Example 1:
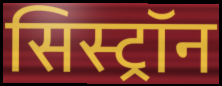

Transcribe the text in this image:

सिस्ट्रॉन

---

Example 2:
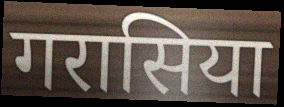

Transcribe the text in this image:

गरासिया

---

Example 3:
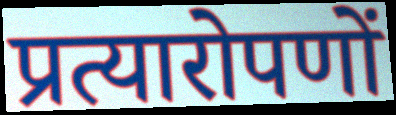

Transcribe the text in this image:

प्रत्यारोपणों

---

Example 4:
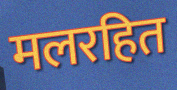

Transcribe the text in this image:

मलरहित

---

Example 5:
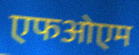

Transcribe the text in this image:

एफओएम